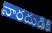
నారదుడికి